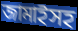
জামাইসহ